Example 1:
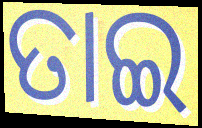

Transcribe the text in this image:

ତାଇ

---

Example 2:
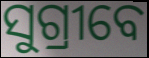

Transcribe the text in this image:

ସୁଗ୍ରୀବେ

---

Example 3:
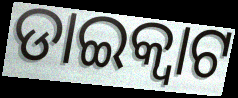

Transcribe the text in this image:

ଡାଇକ୍ଵାଟ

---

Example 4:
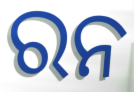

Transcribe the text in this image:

ରନ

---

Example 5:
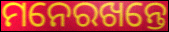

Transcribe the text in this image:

ମନେରଖନ୍ତେ